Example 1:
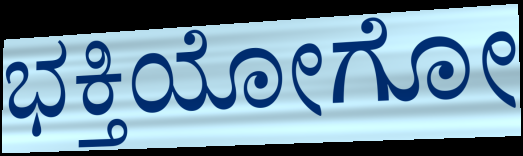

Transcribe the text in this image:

ಭಕ್ತಿಯೋಗೋ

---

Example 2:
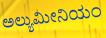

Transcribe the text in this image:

ಅಲ್ಯುಮೀನಿಯಂ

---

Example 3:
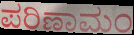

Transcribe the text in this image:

ಪರಿಣಾಮಂ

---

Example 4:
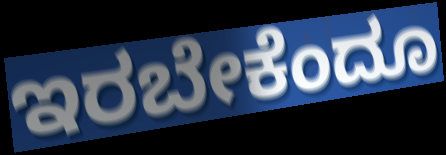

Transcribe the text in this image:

ಇರಬೇಕೆಂದೂ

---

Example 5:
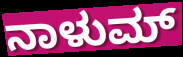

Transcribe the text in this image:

ನಾಳುಮ್